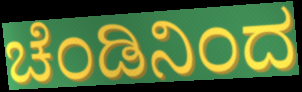
ಚೆಂಡಿನಿಂದ